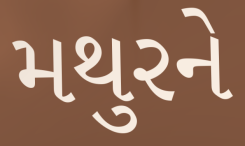
મથુરને